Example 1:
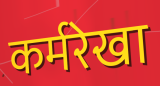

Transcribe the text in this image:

कर्मरेखा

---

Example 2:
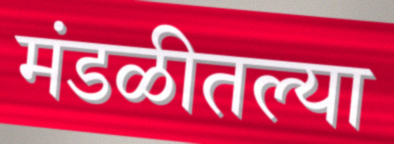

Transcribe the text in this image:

मंडळीतल्या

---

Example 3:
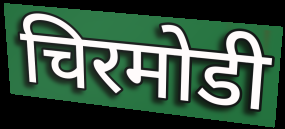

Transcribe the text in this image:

चिरमोडी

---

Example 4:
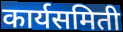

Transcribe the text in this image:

कार्यसमिती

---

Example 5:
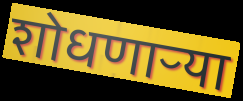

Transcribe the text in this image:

शोधणाऱ्या